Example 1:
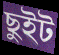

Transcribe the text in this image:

ছুইট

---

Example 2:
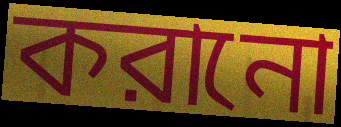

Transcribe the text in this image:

করানো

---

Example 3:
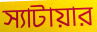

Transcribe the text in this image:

স্যাটায়ার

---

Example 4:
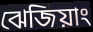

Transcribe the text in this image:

ঝেজিয়াং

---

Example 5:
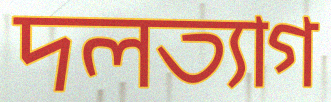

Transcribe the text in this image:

দলত্যাগ